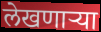
लेखणाऱ्या